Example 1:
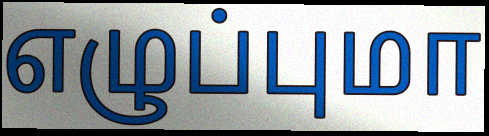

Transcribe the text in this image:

எழுப்புமா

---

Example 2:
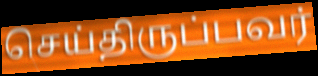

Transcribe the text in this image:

செய்திருப்பவர்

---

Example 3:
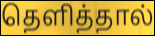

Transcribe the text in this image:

தெளித்தால்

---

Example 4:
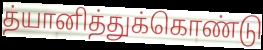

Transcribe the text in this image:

த்யானித்துக்கொண்டு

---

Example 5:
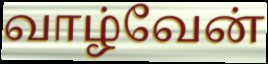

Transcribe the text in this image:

வாழ்வேன்